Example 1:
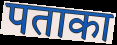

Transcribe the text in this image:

पताका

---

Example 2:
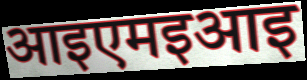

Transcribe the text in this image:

आइएमइआइ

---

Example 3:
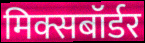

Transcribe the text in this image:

मिक्सबॉर्डर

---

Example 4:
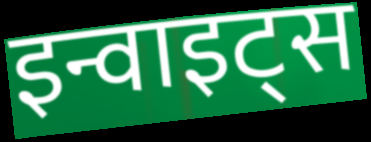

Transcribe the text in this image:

इन्वाइट्स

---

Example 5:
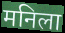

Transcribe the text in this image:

मनिला